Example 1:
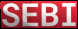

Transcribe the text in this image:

SEBI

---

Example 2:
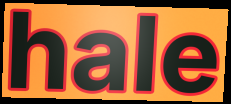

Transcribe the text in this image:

hale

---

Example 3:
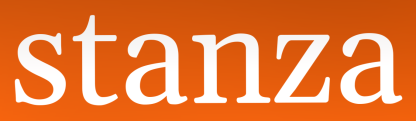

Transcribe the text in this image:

stanza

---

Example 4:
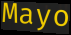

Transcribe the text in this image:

Mayo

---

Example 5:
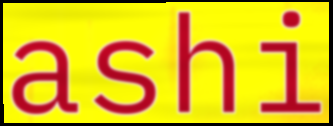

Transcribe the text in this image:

ashi